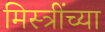
मिस्त्रींच्या